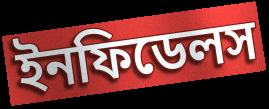
ইনফিডেলস